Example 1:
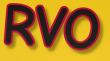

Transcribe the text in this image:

RVO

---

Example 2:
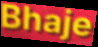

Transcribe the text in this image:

Bhaje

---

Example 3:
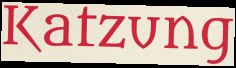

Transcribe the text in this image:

Katzung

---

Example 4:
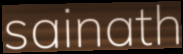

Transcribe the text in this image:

sainath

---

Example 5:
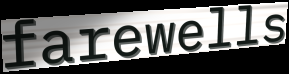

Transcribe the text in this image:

farewells